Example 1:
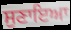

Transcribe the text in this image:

ਸੁਣਾਇਆ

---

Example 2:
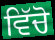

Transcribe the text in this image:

ਵਿੱਚੋ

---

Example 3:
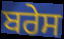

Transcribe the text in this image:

ਬਰੇਸ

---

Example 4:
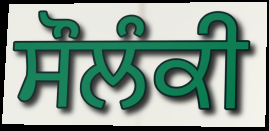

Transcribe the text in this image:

ਸੌਲੰਕੀ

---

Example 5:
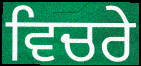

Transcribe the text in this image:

ਵਿਚਰੇ